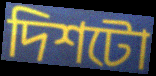
দিশটো